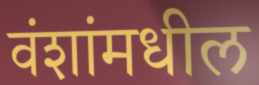
वंशांमधील